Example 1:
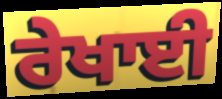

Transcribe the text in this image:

ਰੇਖਾਈ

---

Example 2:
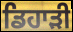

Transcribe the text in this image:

ਡਿਹਾੜੀ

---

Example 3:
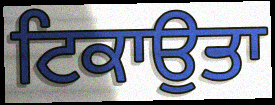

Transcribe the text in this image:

ਟਿਕਾਉਤਾ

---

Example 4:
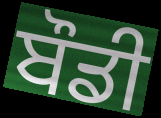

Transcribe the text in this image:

ਬੌਡੀ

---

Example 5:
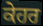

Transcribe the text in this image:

ਕੇਹਰ